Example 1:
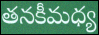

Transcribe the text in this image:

తనకీమధ్య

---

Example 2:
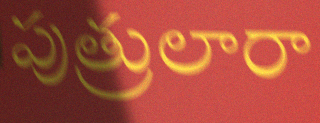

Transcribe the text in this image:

పుత్రులారా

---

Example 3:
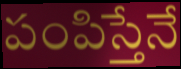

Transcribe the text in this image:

పంపిస్తేనే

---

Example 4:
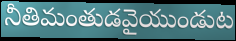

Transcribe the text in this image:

నీతిమంతుడవైయుండుట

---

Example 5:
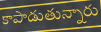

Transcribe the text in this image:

కాపాడుతున్నారు